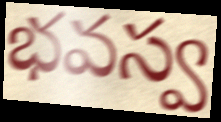
భవస్వ